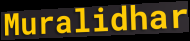
Muralidhar